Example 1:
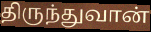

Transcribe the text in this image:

திருந்துவான்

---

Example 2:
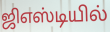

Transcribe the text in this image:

ஜிஎஸ்டியில்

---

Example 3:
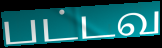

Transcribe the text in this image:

பட்டவ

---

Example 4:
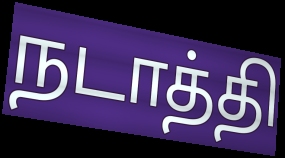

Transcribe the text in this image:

நடாத்தி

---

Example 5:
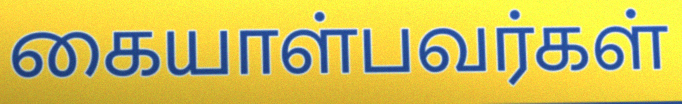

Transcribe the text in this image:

கையாள்பவர்கள்